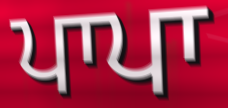
ਪਾਪਾ